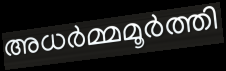
അധർമ്മമൂർത്തി